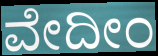
ವೇದೀಂ